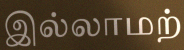
இல்லாமற்